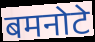
बमनोटे